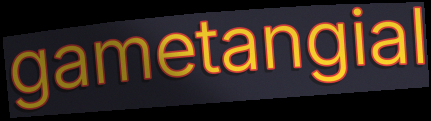
gametangial